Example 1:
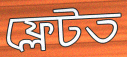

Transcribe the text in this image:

ফ্লেটত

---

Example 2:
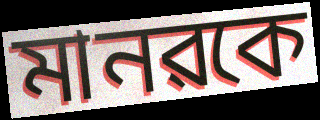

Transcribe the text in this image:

মানৱকে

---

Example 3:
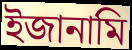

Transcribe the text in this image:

ইজানামি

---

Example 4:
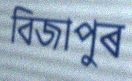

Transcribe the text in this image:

বিজাপুৰ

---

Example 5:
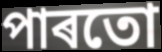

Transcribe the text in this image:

পাৰতো